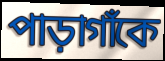
পাড়াগাঁকে